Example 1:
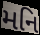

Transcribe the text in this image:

મનિ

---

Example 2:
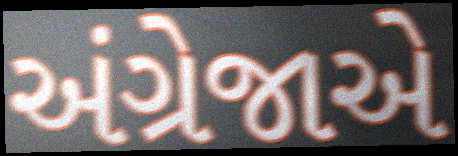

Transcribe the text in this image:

અંગ્રેજાએ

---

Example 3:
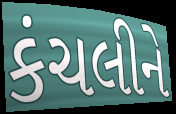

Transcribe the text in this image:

કંચલીને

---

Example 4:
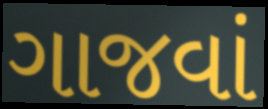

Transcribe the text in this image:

ગાજવાં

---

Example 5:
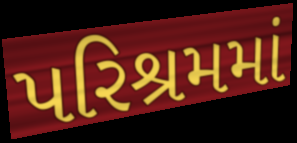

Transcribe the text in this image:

પરિશ્રમમાં